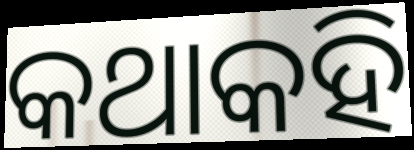
କଥାକହି